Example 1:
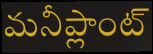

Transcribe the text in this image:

మనీప్లాంట్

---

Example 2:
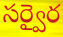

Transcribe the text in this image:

సర్వైర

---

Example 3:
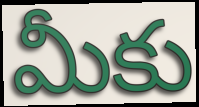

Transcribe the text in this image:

మీకు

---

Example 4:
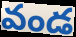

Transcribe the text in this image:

వండ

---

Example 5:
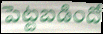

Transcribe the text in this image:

పెట్టబడిందో